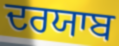
ਦਰਯਾਬ